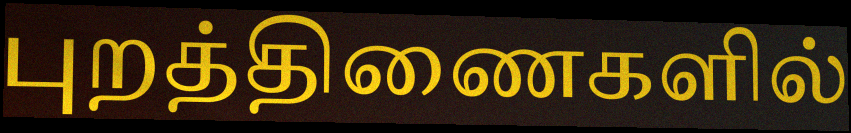
புறத்திணைகளில்